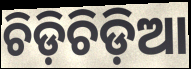
ଚିଡ଼ିଚିଡ଼ିଆ